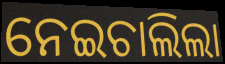
ନେଇଚାଲିଲା